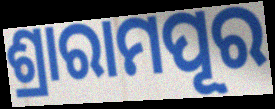
ଶ୍ରାରାମପୂର